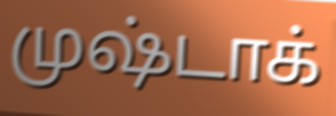
முஷ்டாக்